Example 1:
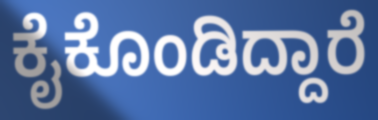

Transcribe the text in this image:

ಕೈಕೊಂಡಿದ್ದಾರೆ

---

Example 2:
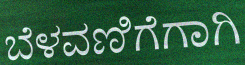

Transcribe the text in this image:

ಬೆಳವಣಿಗೆಗಾಗಿ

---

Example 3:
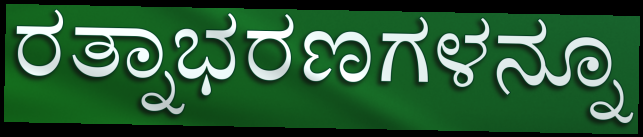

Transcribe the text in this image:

ರತ್ನಾಭರಣಗಳನ್ನೂ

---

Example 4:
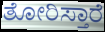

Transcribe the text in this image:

ತೋರಿಸ್ತಾರೆ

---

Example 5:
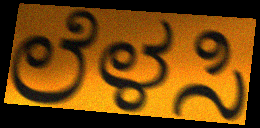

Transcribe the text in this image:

ಲೆಳಸಿ